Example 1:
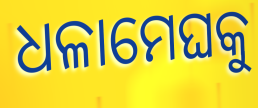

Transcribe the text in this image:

ଧଳାମେଘକୁ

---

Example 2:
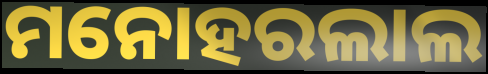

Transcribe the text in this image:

ମନୋହରଲାଲ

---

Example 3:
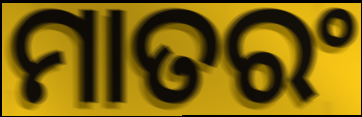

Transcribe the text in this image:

ମାତରଂ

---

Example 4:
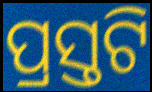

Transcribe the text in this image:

ପ୍ରସ୍ତଟି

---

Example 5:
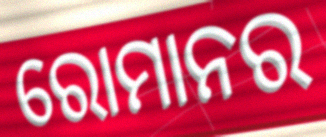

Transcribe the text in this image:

ରୋମାନର